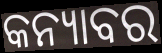
କନ୍ୟାବର